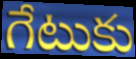
గేటుకు